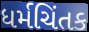
ધર્મચિંતક